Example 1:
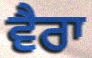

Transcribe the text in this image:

ਵੈਰਾ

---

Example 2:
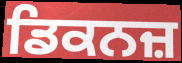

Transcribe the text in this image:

ਡਿਕਨਜ਼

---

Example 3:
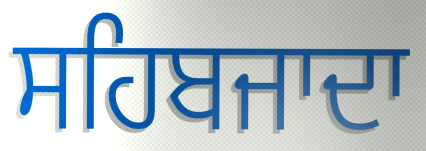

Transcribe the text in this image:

ਸਹਿਬਜਾਦਾ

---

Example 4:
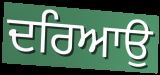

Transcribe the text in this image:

ਦਰਿਆਉ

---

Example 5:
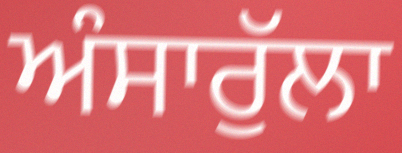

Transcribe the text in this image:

ਅੰਸਾਰੁੱਲਾ